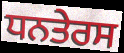
ਧਨਤੇਰਸ